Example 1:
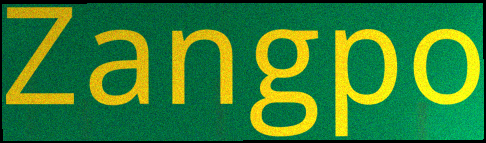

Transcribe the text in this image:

Zangpo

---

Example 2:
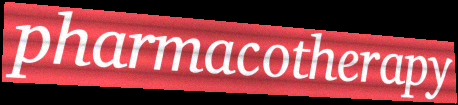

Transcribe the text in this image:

pharmacotherapy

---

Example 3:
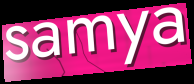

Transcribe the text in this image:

samya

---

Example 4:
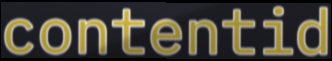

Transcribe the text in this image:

contentid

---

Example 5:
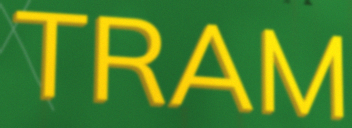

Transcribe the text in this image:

TRAM